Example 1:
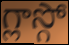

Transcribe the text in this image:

గ్లాస్గో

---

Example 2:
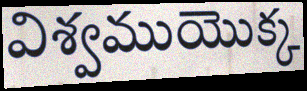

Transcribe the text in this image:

విశ్వముయొక్క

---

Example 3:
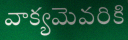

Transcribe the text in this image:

వాక్యమెవరికి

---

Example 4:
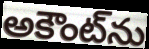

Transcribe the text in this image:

అకౌంట్‌ను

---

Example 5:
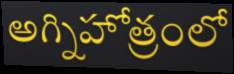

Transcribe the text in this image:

అగ్నిహోత్రంలో